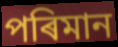
পৰিমান